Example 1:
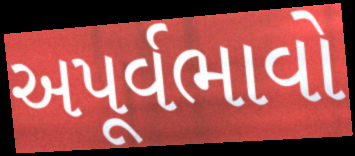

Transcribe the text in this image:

અપૂર્વભાવો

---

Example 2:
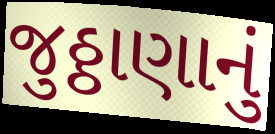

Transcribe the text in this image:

જુઠ્ઠાણાનું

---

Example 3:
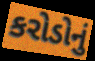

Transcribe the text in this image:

કરોડોનું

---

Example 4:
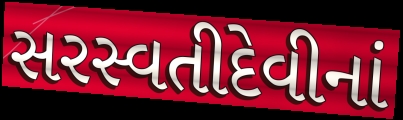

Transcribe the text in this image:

સરસ્વતીદેવીનાં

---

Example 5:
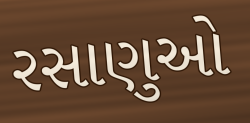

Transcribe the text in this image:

રસાણુઓ